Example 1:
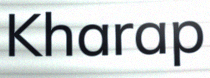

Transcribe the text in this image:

Kharap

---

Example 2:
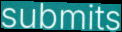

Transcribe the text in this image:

submits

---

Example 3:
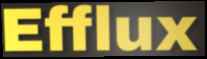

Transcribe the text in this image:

Efflux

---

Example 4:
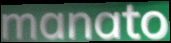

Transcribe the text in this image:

manato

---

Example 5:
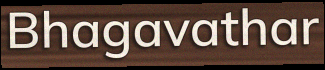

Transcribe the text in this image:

Bhagavathar